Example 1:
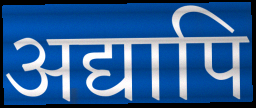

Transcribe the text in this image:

अद्यापि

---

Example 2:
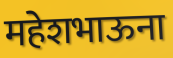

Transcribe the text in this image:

महेशभाऊना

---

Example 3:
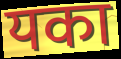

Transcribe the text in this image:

यका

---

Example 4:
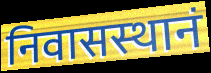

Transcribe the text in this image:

निवासस्थानं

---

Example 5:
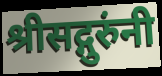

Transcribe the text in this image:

श्रीसद्गुरुंनी